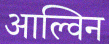
आल्विन